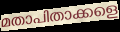
മതാപിതാക്കളെ